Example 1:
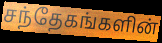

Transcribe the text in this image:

சந்தேகங்களின்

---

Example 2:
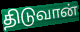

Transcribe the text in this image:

திடுவான்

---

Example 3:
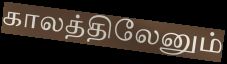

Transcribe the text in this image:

காலத்திலேனும்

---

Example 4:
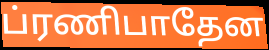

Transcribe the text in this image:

ப்ரணிபாதேன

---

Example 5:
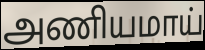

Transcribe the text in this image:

அணியமாய்